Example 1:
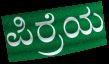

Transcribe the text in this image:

ಪಿರ್ರೆಯ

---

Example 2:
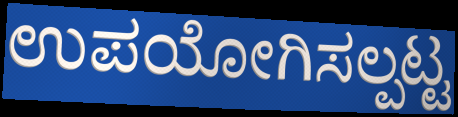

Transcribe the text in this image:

ಉಪಯೋಗಿಸಲ್ಪಟ್ಟ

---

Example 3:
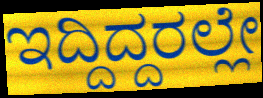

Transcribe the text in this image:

ಇದ್ದಿದ್ದರಲ್ಲೇ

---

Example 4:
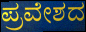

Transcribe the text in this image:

ಪ್ರವೇಶದ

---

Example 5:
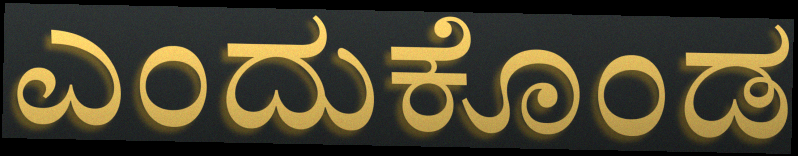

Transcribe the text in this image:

ಎಂದುಕೊಂಡ